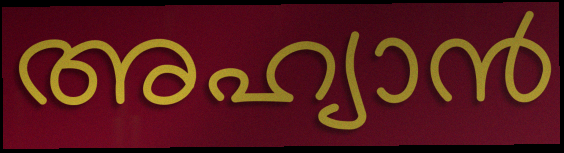
അഹ്യാൻ